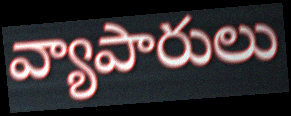
వ్యాపారులు